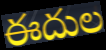
ఈదుల